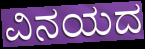
ವಿನಯದ